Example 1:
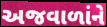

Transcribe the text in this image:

અજવાળાંને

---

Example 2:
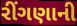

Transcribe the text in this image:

રીંગણાની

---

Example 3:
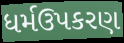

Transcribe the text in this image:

ધર્મઉપકરણ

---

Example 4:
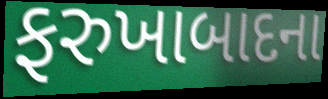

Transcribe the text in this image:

ફરુખાબાદના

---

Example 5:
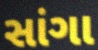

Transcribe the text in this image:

સાંગા